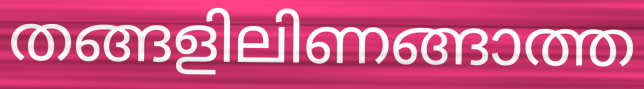
തങ്ങളിലിണങ്ങാത്ത